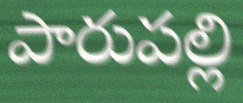
పారుపల్లి